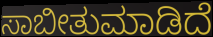
ಸಾಬೀತುಮಾಡಿದೆ